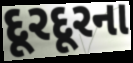
દૂરદૂરના